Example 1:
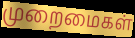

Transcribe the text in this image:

முறைமைகள்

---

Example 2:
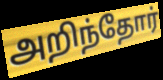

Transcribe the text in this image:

அறிந்தோர்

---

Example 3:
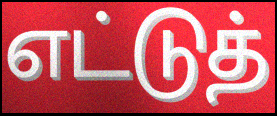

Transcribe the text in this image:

எட்டுத்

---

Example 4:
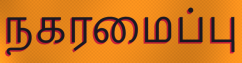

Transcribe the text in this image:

நகரமைப்பு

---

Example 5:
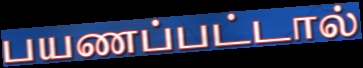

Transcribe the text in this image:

பயணப்பட்டால்